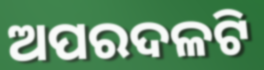
ଅପରଦଳଟି